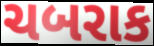
ચબરાક